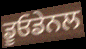
ਡੂਓਡੇਨਲ